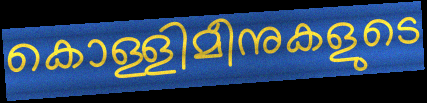
കൊള്ളിമീനുകളുടെ